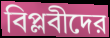
বিপ্লবীদের